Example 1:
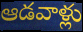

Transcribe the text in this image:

ఆడవాళ్లు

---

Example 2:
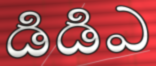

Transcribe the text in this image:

డిడిఎ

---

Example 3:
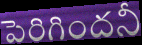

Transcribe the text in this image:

పెరిగిందనీ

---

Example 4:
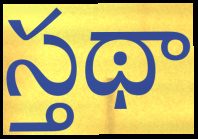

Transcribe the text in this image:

స్తథా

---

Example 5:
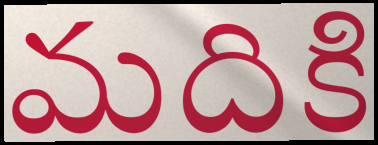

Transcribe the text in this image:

మదికి